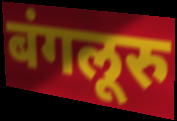
बंगलूरु